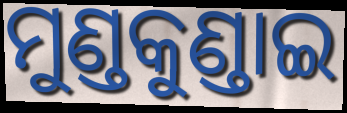
ମୁଣ୍ଡକୁଣ୍ଡାଇ